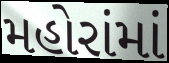
મહોરાંમાં